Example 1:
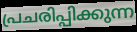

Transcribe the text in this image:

പ്രചരിപ്പിക്കുന്ന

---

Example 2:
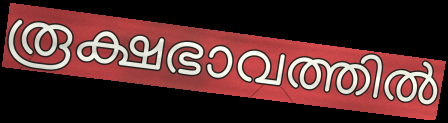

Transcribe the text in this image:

രൂക്ഷഭാവത്തിൽ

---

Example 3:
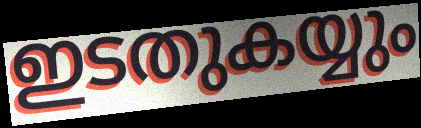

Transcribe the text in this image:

ഇടതുകയ്യും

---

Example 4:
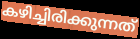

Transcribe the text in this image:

കഴിച്ചിരിക്കുന്നത്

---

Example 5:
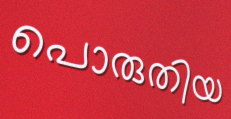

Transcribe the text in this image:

പൊരുതിയ